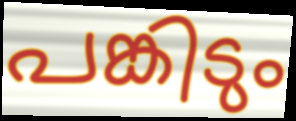
പങ്കിടും